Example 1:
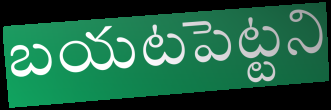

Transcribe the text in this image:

బయటపెట్టని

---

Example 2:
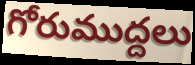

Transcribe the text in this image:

గోరుముద్దలు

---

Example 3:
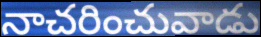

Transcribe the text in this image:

నాచరించువాడు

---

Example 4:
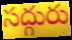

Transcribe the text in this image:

సద్గురు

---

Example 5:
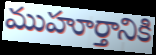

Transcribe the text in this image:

ముహూర్తానికి